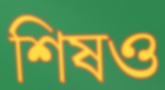
শিষও